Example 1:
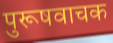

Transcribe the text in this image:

पुरूषवाचक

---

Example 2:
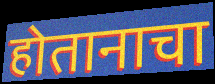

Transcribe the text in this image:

होतानाचा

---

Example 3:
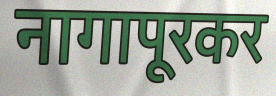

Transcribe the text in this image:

नागापूरकर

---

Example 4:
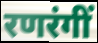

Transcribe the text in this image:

रणरंगीं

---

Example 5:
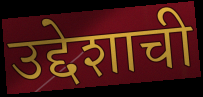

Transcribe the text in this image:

उद्देशाची